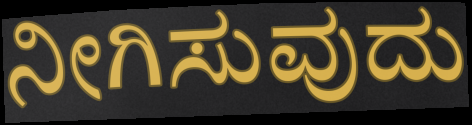
ನೀಗಿಸುವುದು